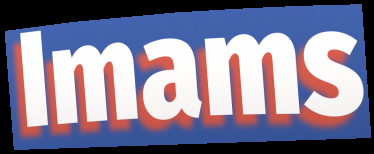
Imams